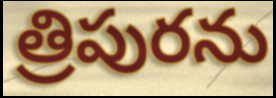
త్రిపురను